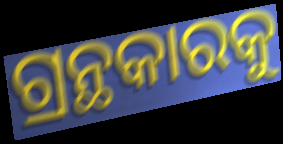
ଗ୍ରନ୍ଥକାରକୁ